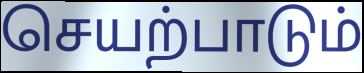
செயற்பாடும்